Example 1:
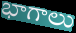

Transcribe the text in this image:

భాగాలు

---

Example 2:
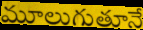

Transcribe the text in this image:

మూలుగుతూనే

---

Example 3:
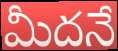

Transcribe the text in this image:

మీదనే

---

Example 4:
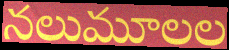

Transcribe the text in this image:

నలుమూలల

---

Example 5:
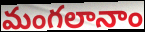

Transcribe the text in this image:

మంగలానాం